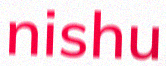
nishu